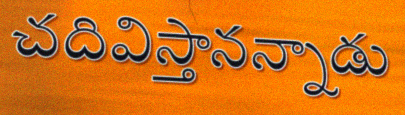
చదివిస్తానన్నాడు